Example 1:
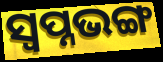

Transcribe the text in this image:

ସ୍ୱପ୍ନଭଙ୍ଗ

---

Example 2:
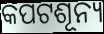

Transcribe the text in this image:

କପଟଶୂନ୍ୟ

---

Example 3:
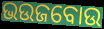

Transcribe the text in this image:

ଭଉଜବୋଉ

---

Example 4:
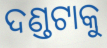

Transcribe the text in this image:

ଦଣ୍ଡଟାକୁ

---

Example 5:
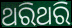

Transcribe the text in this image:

ଥରିଥରି